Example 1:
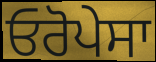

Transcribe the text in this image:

ਓਰੋਪੇਸਾ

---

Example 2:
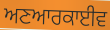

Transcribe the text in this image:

ਅਣਆਰਕਾਈਵ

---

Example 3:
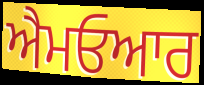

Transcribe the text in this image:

ਐਮਓਆਰ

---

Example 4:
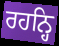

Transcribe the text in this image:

ਰਹਨ੍ਹਿ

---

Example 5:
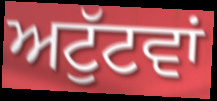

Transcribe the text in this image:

ਅਟੁੱਟਵਾਂ